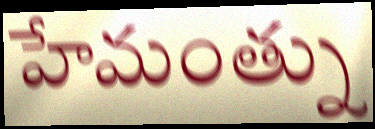
హేమంత్ను